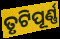
ତୃଟିପୂର୍ଣ୍ଣ